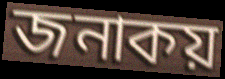
জনাকয়